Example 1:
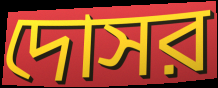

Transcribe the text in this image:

দোসর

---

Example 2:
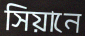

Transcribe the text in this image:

সিয়ানে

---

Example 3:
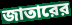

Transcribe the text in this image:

জাতারের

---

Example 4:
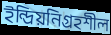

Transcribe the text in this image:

ইন্দ্রিয়নিগ্রহশীল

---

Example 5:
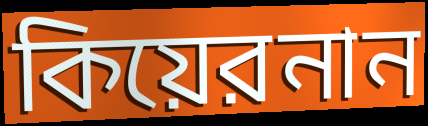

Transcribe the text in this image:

কিয়েরনান